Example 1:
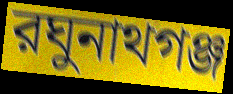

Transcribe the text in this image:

রঘুনাথগঞ্জ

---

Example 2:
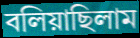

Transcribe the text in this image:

বলিয়াছিলাম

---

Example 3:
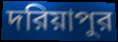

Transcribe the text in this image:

দরিয়াপুর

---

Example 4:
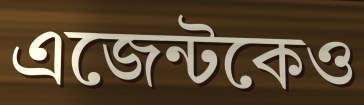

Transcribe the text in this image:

এজেন্টকেও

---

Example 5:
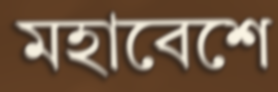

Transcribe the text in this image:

মহাবেশে